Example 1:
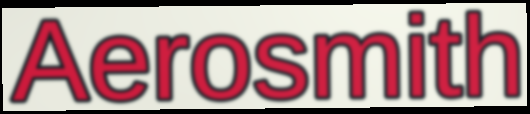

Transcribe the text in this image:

Aerosmith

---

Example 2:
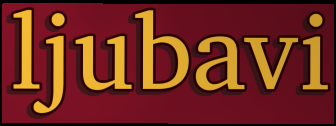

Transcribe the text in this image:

ljubavi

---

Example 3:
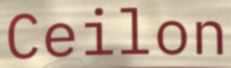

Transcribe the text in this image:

Ceilon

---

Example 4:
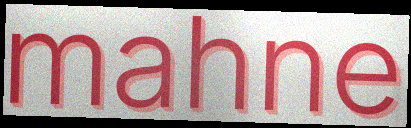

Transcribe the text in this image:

mahne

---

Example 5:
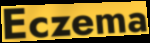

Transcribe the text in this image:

Eczema